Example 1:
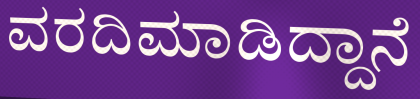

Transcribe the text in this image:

ವರದಿಮಾಡಿದ್ದಾನೆ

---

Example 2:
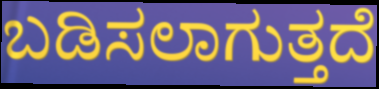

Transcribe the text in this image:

ಬಡಿಸಲಾಗುತ್ತದೆ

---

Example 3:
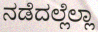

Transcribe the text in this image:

ನಡೆದಲ್ಲೆಲ್ಲಾ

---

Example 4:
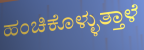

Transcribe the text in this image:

ಹಂಚಿಕೊಳ್ಳುತ್ತಾಳೆ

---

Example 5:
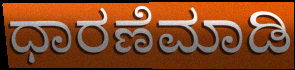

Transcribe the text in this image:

ಧಾರಣೆಮಾಡಿ